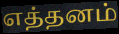
எத்தனம்